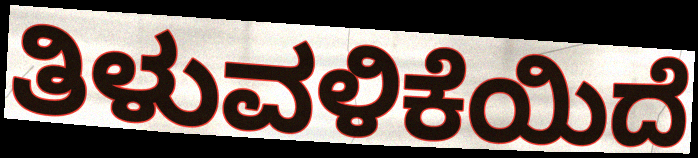
ತಿಳುವಳಿಕೆಯಿದೆ